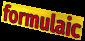
formulaic